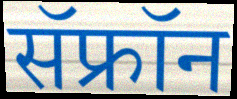
सॅफ्रॉन